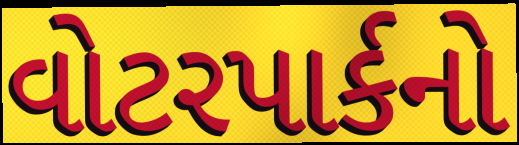
વોટરપાર્કનો